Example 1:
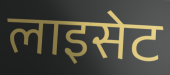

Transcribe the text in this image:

लाइसेट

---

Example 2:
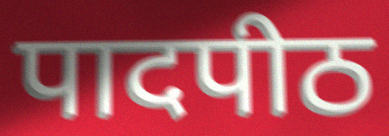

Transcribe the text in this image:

पादपीठ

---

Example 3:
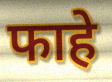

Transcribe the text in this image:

फाहे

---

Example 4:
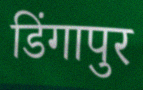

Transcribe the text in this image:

डिंगापुर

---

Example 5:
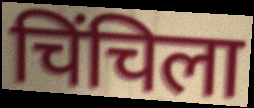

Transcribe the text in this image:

चिंचिला